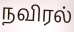
நவிரல்